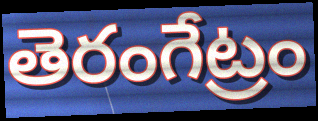
తెరంగేట్రం